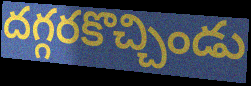
దగ్గరకొచ్చిండు